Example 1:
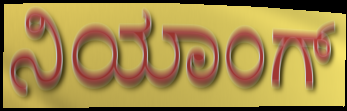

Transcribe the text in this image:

ನಿಯಾಂಗ್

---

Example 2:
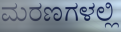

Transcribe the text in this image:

ಮರಣಗಳಲ್ಲಿ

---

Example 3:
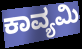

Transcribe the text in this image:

ಕಾವ್ಯಮಿ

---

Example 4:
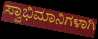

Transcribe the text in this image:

ಸ್ವಾಭಿಮಾನಿಗಳಾಗಿ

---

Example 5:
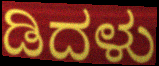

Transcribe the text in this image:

ಡಿದಳು